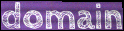
domain